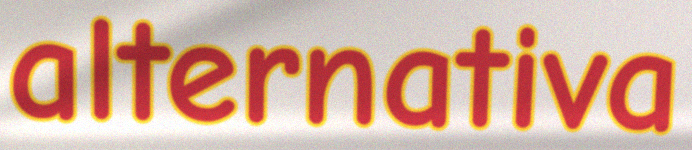
alternativa